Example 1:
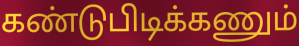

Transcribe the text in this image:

கண்டுபிடிக்கணும்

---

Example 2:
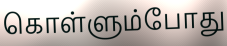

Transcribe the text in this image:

கொள்ளும்போது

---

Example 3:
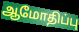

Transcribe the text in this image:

ஆமோதிப்பு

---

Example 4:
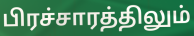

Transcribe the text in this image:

பிரச்சாரத்திலும்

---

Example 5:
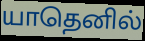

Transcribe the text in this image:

யாதெனில்